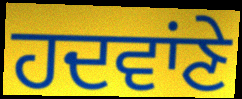
ਹਦਵਾਂਣੇ